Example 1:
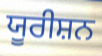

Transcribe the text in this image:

ਯੂਰੀਸ਼ਨ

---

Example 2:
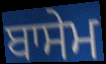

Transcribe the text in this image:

ਬਾਸੇਮ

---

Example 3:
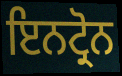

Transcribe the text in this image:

ਇਨਟ੍ਰੋਨ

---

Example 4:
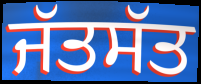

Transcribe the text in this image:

ਜੱਤਸੱਤ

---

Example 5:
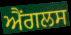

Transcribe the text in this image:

ਐਂਗਲਸ